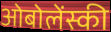
ओबोलेंस्की